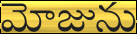
మోజును